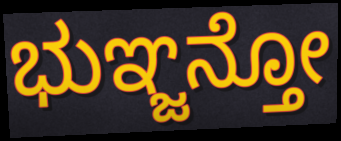
ಭುಞ್ಜನ್ತೋ